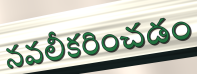
నవలీకరించడం